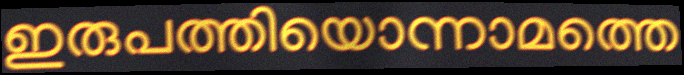
ഇരുപത്തിയൊന്നാമത്തെ